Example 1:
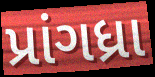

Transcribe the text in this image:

પ્રાંગધ્રા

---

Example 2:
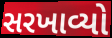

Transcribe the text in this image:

સરખાવ્યો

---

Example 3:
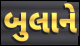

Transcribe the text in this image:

બુલાને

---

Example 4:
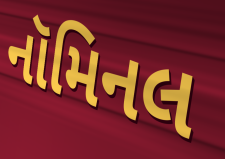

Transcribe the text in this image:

નૉમિનલ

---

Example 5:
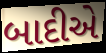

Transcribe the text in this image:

બાદીએ